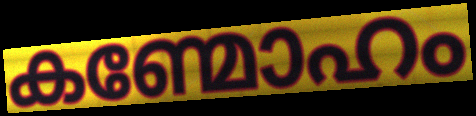
കണ്മോഹം